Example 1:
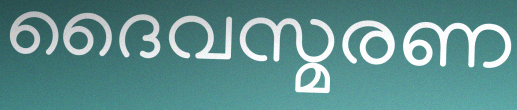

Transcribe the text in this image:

ദൈവസ്മരണ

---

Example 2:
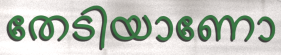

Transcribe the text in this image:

തേടിയാണോ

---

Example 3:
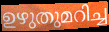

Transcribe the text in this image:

ഉഴുതുമറിച്ച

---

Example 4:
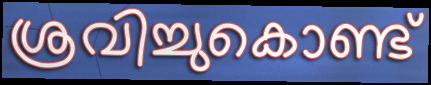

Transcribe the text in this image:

ശ്രവിച്ചുകൊണ്ട്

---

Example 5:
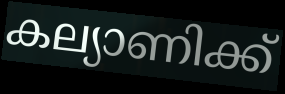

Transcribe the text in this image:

കല്യാണിക്ക്